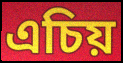
এচিয়